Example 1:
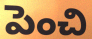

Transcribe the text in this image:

పెంచి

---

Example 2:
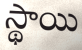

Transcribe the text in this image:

స్థాయి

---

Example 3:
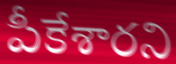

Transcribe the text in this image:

పీకేశారని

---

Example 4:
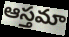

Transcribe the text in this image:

ఆస్తమా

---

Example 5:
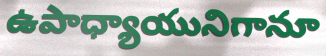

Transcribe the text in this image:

ఉపాధ్యాయునిగానూ